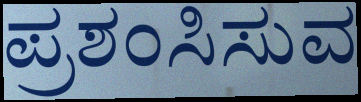
ಪ್ರಶಂಸಿಸುವ